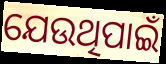
ଯେଉଥିପାଇଁ